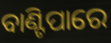
ବାଣ୍ଟିପାରେ